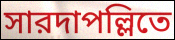
সারদাপল্লিতে